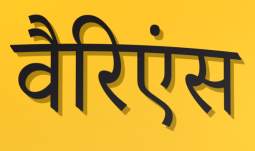
वैरिएंस